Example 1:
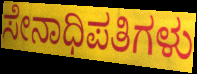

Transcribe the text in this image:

ಸೇನಾಧಿಪತಿಗಳು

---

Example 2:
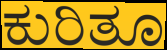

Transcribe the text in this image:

ಕುರಿತೂ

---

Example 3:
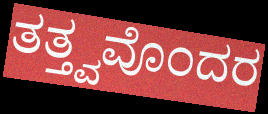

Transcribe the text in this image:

ತತ್ತ್ವವೊಂದರ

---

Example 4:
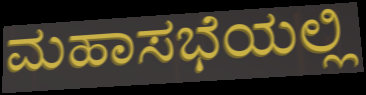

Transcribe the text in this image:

ಮಹಾಸಭೆಯಲ್ಲಿ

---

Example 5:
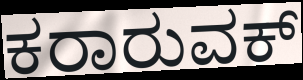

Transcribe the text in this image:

ಕರಾರುವಕ್